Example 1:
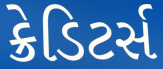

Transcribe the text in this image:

ક્રેડિટર્સ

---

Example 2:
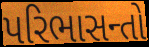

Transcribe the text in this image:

પરિભાસન્તો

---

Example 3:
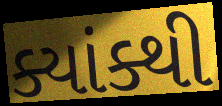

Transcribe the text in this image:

ક્યાંક્થી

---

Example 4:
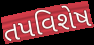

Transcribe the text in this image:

તપવિશેષ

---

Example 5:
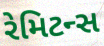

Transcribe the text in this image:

રેમિટન્સ